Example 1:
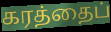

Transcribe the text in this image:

கரத்தைப்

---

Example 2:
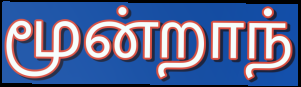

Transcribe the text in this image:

மூன்றாந்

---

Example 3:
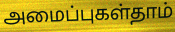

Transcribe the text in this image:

அமைப்புகள்தாம்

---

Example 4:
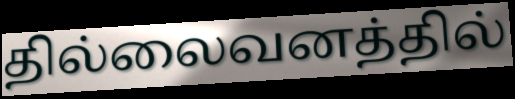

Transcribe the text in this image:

தில்லைவனத்தில்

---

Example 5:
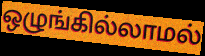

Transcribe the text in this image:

ஒழுங்கில்லாமல்